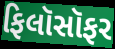
ફિલૉસૉફર